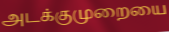
அடக்குமுறையை